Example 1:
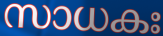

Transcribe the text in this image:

സാധകഃ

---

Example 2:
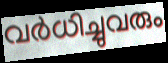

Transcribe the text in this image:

വർധിച്ചുവരും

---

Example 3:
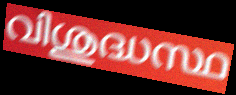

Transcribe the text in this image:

വിശുദ്ധസ്ഥ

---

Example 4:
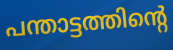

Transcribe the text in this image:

പന്താട്ടത്തിന്റെ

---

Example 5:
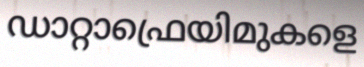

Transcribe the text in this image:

ഡാറ്റാഫ്രെയിമുകളെ